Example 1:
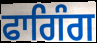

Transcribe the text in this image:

ਫਾਗਿੰਗ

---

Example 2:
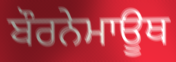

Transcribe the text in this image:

ਬੌਰਨੇਮਾਊਥ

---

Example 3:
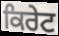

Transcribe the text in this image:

ਕਿਰੇਟ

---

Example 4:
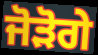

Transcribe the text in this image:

ਜੋੜੋਗੇ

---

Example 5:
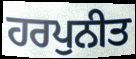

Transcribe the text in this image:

ਹਰਪੁਨੀਤ